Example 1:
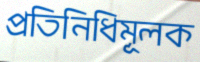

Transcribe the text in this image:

প্ৰতিনিধিমূলক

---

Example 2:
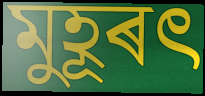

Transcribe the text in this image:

মুহূৰৎ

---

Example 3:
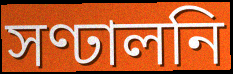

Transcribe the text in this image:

সণ্ঢালনি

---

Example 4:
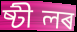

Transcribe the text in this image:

ষ্টীলৰ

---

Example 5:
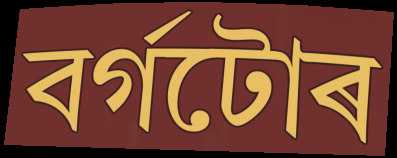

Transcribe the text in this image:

বৰ্গটোৰ